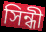
সিন্ধী